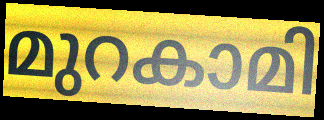
മുറകാമി